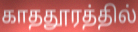
காததூரத்தில்